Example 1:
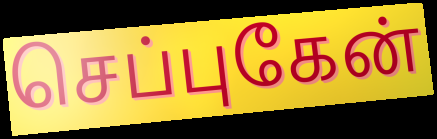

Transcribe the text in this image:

செப்புகேன்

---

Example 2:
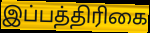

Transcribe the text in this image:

இப்பத்திரிகை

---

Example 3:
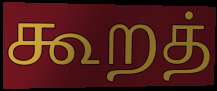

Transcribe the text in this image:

கூறத்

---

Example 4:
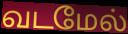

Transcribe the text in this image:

வடமேல்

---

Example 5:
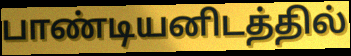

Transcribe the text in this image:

பாண்டியனிடத்தில்